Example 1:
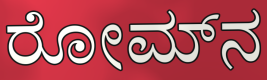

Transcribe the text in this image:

ರೋಮ್‍ನ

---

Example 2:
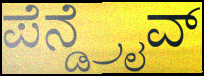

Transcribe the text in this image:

ಪೆನ್ಡ್ರೈವ್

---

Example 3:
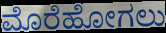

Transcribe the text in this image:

ಮೊರೆಹೋಗಲು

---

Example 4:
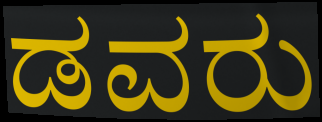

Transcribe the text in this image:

ಡವರು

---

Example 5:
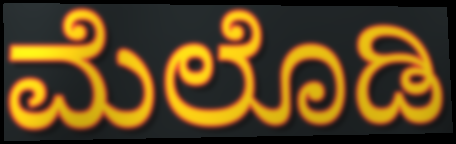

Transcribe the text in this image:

ಮೆಲೊಡಿ